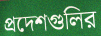
প্রদেশগুলির